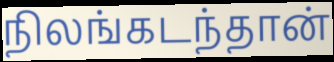
நிலங்கடந்தான்